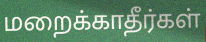
மறைக்காதீர்கள்